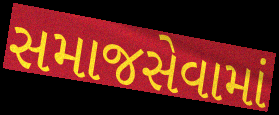
સમાજસેવામાં